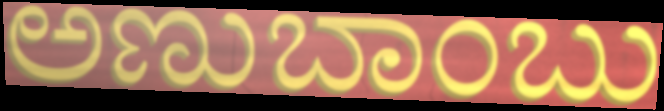
ಅಣುಬಾಂಬು